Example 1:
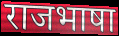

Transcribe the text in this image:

राजभाषा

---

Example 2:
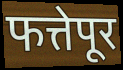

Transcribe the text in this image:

फत्तेपूर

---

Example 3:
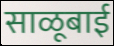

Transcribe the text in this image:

साळूबाई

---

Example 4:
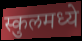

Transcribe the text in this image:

स्कुलमध्ये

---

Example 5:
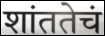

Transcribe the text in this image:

शांततेचं